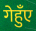
गेहुँए